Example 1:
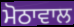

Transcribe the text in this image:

ਮੋਠਾਵਾਲ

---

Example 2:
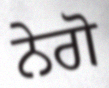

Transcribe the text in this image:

ਨੇਗੋ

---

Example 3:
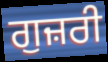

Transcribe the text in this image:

ਗੁਜ਼ਰੀ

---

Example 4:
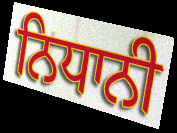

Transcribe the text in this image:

ਨਿਧਾਨੀ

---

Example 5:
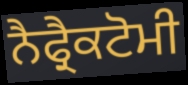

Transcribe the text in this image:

ਨੈਫ੍ਰੈਕਟੋਮੀ